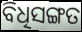
ବିଧିସଙ୍ଗତ